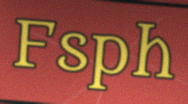
Fsph